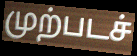
முற்படச்